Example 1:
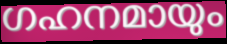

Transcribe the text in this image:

ഗഹനമായും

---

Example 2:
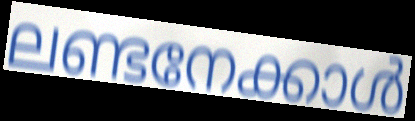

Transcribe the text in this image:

ലണ്ടനേക്കാൾ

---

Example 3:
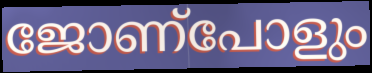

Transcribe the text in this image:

ജോണ്പോളും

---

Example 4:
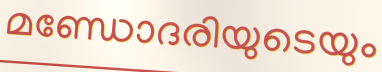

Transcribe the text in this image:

മണ്ഡോദരിയുടെയും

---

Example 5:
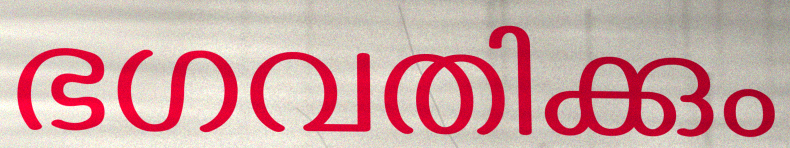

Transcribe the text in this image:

ഭഗവതിക്കും